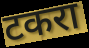
टकरा